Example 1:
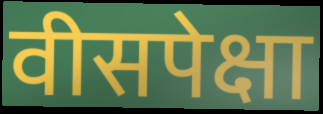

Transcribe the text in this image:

वीसपेक्षा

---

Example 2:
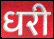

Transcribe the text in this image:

धरी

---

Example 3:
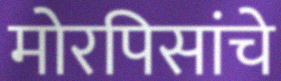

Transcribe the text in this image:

मोरपिसांचे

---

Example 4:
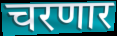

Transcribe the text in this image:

चरणार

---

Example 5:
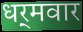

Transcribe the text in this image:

धर्मवार